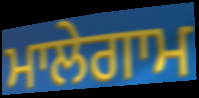
ਮਾਲੇਗਾਮ